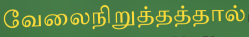
வேலைநிறுத்தத்தால்